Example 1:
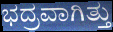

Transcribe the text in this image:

ಭದ್ರವಾಗಿತ್ತು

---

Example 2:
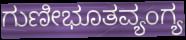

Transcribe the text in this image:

ಗುಣೀಭೂತವ್ಯಂಗ್ಯ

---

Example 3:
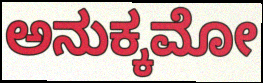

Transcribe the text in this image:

ಅನುಕ್ಕಮೋ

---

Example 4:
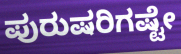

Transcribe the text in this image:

ಪುರುಷರಿಗಷ್ಟೇ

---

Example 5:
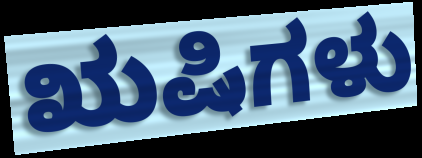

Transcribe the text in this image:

ಋಷಿಗಳು